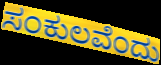
ಸಂಕುಲವೆಂದು